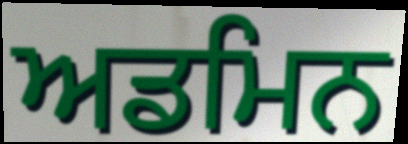
ਅਡਮਿਨ